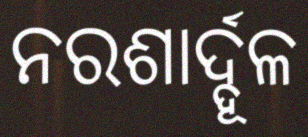
ନରଶାର୍ଦ୍ଦୂଳ